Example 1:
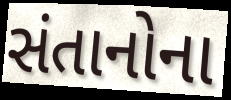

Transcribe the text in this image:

સંતાનોના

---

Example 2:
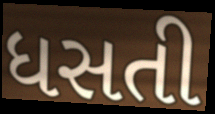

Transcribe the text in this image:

ધસતી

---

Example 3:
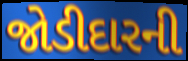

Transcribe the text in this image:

જોડીદારની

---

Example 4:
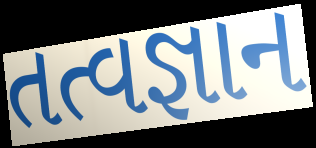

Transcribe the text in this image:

તત્વજ્ઞાન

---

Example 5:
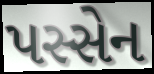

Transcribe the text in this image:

પસ્સેન